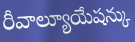
రీవాల్యూయేషన్కు